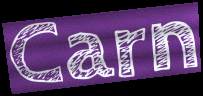
Carn